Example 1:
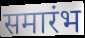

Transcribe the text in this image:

समारंभ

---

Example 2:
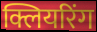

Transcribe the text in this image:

क्लियरिंग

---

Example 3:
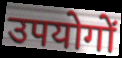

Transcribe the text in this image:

उपयोगों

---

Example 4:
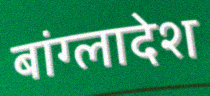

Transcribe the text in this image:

बांग्लादेश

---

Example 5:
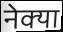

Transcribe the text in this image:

नेक्या